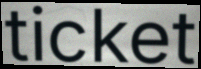
ticket